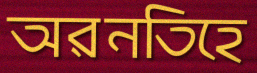
অৱনতিহে